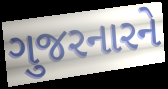
ગુજરનારને